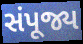
સંપૂજ્ય